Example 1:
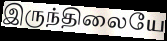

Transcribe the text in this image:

இருந்திலையே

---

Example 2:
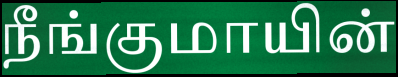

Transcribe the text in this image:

நீங்குமாயின்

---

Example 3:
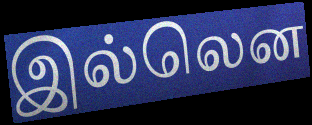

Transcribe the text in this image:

இல்லென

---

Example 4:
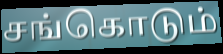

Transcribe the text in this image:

சங்கொடும்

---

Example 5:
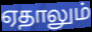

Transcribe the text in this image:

ஏதாலும்